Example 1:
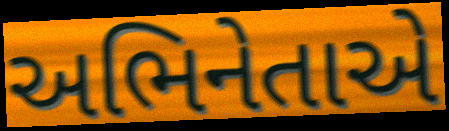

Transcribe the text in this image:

અભિનેતાએ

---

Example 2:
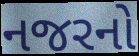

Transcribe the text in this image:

નજરનો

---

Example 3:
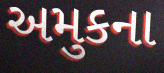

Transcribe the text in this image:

અમુકના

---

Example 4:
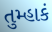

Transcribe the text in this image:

તુમ્હાકં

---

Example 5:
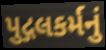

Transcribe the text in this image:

પુદ્ગલકર્મનું